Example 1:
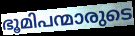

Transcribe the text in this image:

ഭൂമിപന്മാരുടെ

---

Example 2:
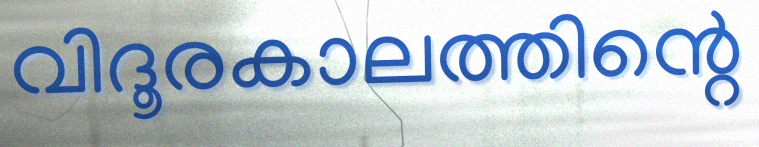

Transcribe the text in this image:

വിദൂരകാലത്തിന്റെ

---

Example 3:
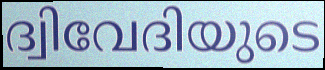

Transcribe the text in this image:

ദ്വിവേദിയുടെ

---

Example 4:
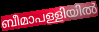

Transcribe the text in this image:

ബീമാപള്ളിയിൽ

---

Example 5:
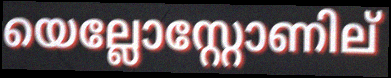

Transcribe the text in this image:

യെല്ലോസ്റ്റോണില്